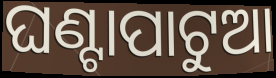
ଘଣ୍ଟାପାଟୁଆ